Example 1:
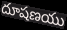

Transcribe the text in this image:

దూషణయు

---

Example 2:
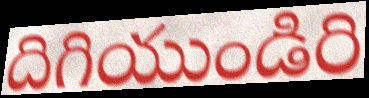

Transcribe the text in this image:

దిగియుండిరి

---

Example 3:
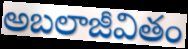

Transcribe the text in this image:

అబలాజీవితం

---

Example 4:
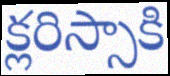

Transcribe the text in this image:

క్లరిస్సాకి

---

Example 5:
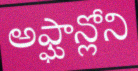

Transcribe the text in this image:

అఫ్ఘాన్లోని